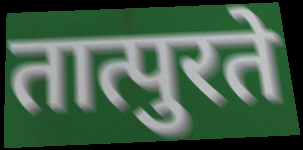
तात्पुरते